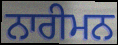
ਨਾਰੀਮਨ